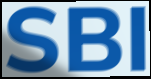
SBI